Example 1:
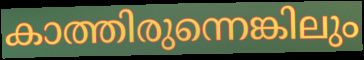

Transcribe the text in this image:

കാത്തിരുന്നെങ്കിലും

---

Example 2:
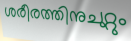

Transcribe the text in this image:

ശരീരത്തിനുചുറ്റും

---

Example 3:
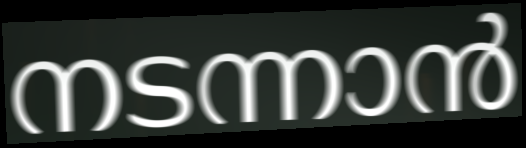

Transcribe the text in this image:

നടന്നാൻ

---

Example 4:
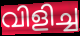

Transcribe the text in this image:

വിളിച്ച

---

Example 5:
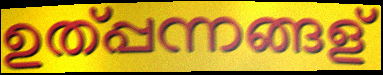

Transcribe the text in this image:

ഉത്പ്പന്നങ്ങള്